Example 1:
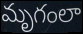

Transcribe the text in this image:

మృగంలా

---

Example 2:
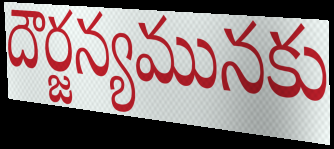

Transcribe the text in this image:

దౌర్జన్యమునకు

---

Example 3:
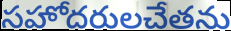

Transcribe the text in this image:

సహోదరులచేతను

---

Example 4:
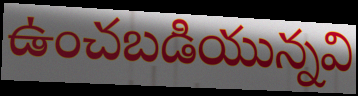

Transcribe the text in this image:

ఉంచబడియున్నవి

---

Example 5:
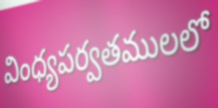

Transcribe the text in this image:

వింధ్యపర్వతములలో